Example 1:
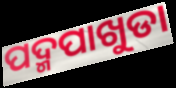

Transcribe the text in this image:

ପଦ୍ମପାଖୁଡା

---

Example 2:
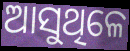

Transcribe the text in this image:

ଆସୁଥିଳେ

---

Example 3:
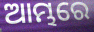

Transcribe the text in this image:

ଆମ୍ଭରେ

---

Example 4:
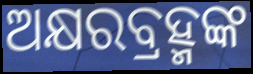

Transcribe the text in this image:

ଅକ୍ଷରବ୍ରହ୍ମଙ୍କ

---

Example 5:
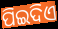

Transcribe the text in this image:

ପିଇଦିଏ